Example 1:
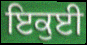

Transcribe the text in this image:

ਇਕੁਈ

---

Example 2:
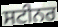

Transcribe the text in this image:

ਸਟੀਨਰ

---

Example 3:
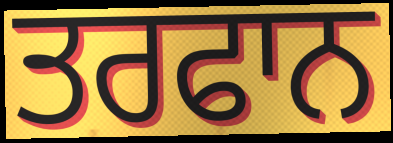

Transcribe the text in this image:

ਤਰਫਾਨ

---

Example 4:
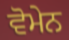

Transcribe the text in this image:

ਵੋਮੇਨ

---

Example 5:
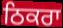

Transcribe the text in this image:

ਠਿਕਰਾ